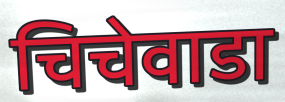
चिचेवाडा